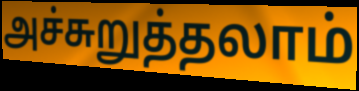
அச்சுறுத்தலாம்